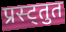
प्रस्ट्तुत